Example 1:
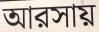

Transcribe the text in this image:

আরসায়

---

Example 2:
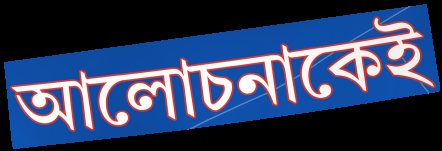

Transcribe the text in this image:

আলোচনাকেই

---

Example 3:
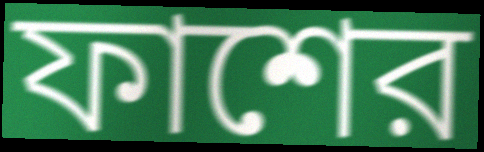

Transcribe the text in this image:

ফাশের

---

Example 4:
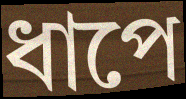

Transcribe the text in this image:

ধাপে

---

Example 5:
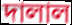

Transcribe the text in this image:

দালাল